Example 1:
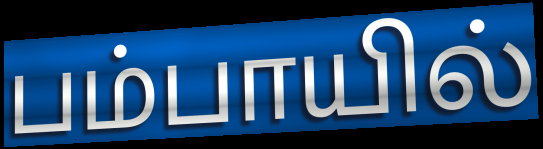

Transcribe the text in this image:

பம்பாயில்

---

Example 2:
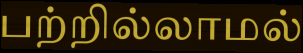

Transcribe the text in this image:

பற்றில்லாமல்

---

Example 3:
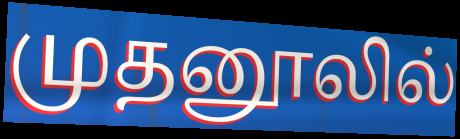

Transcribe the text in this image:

முதனூலில்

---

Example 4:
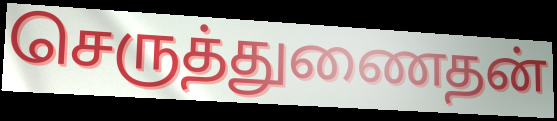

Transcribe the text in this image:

செருத்துணைதன்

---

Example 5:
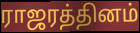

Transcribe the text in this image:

ராஜரத்தினம்